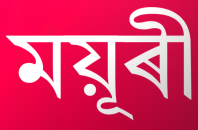
ময়ূৰী